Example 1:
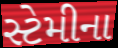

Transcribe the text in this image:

સ્ટેમીના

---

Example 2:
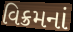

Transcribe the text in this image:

વિક્રમનાં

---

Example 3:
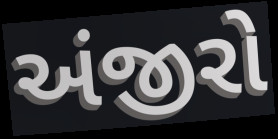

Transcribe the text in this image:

અંજીરો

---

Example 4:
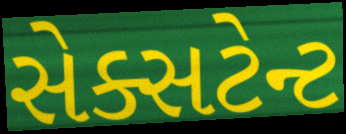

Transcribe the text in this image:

સેક્સટેન્ટ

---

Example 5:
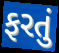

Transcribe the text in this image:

ફરતું